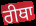
ਰੀਥਾ